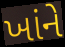
ખાંને